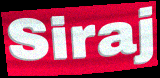
Siraj